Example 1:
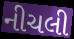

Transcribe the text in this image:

નીચલી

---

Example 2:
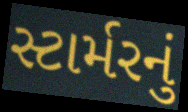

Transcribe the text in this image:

સ્ટાર્મરનું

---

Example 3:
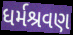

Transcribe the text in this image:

ધર્મશ્રવણ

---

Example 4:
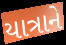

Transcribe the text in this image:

યાત્રાને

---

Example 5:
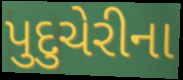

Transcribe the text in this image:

પુદુચેરીના